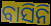
ବାସିନି